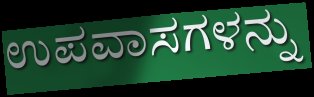
ಉಪವಾಸಗಳನ್ನು